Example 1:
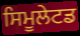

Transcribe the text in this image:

ਸਿਮੂਲੇਟਡ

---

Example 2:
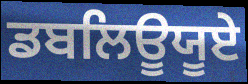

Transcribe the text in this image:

ਡਬਲਿਊਯੂਏ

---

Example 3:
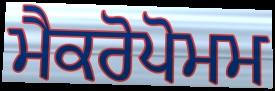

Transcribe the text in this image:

ਮੈਕਰੋਪੋਮਮ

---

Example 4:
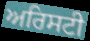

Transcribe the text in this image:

ਅਰਿਸਟੀ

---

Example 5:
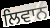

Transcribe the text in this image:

ਲਿਵਾਨ